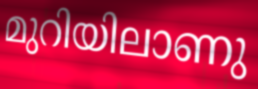
മുറിയിലാണു